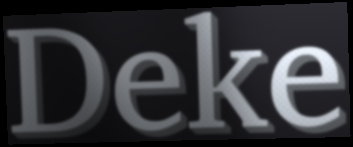
Deke